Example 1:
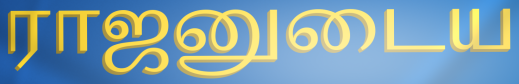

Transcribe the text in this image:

ராஜனுடைய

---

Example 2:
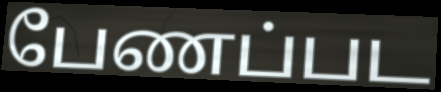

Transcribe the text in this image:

பேணப்பட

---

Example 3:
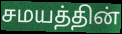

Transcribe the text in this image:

சமயத்தின்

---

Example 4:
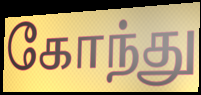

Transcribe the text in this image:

கோந்து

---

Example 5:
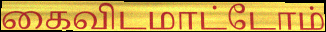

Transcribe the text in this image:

கைவிடமாட்டோம்